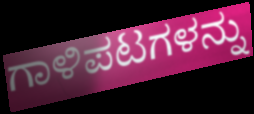
ಗಾಳಿಪಟಗಳನ್ನು